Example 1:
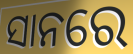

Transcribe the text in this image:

ସାନରେ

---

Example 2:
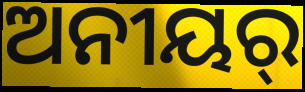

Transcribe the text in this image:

ଅନୀୟର୍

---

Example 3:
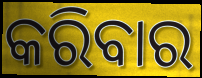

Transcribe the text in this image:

କରିବାର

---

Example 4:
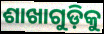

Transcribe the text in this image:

ଶାଖାଗୁଡ଼ିକୁ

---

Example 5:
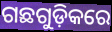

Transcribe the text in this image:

ଗଛଗୁଡ଼ିକରେ